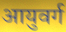
आयुवर्ग